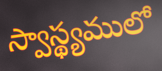
స్వాస్థ్యములో